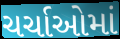
ચર્ચાઓમાં